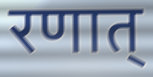
रणात्